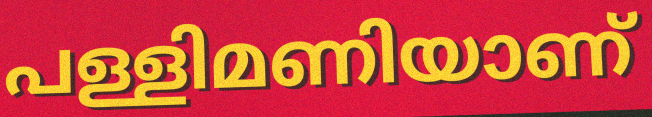
പള്ളിമണിയാണ്